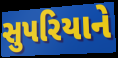
સુપરિયાને